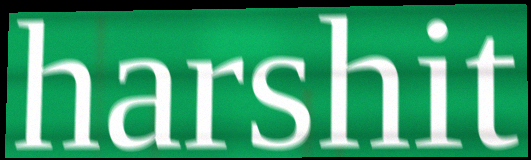
harshit